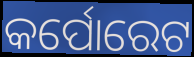
କର୍ପୋରେଟ